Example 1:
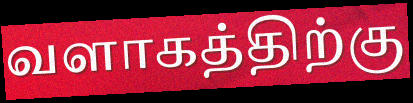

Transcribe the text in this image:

வளாகத்திற்கு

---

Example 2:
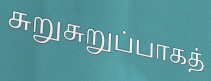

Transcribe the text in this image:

சுறுசுறுப்பாகத்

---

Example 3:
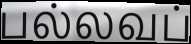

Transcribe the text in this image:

பல்லவப்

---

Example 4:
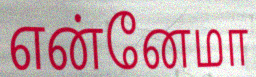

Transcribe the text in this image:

என்னேமா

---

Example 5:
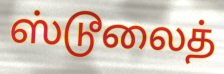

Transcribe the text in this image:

ஸ்டூலைத்